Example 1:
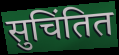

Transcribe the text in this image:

सुचिंतित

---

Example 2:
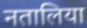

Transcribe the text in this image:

नतालिया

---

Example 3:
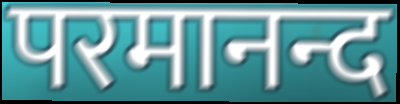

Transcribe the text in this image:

परमानन्द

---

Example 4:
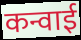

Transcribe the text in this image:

कन्वाई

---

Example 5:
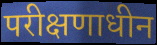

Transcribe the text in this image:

परीक्षणाधीन